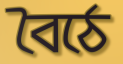
বৈঠে